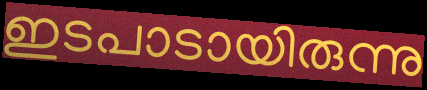
ഇടപാടായിരുന്നു